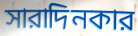
সারাদিনকার